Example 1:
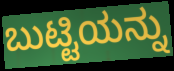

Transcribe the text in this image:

ಬುಟ್ಟಿಯನ್ನು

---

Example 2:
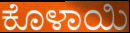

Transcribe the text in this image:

ಕೊಳಾಯಿ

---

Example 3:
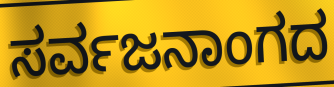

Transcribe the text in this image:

ಸರ್ವಜನಾಂಗದ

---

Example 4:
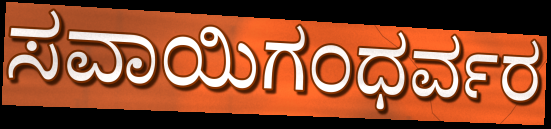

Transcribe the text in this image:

ಸವಾಯಿಗಂಧರ್ವರ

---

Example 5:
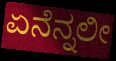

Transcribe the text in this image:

ಏನೆನ್ನಲೀ